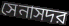
সেনাসদর